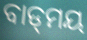
ବାଡ୍‌ମୟ